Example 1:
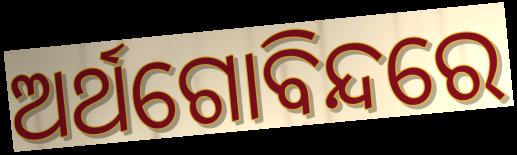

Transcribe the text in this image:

ଅର୍ଥଗୋବିନ୍ଦରେ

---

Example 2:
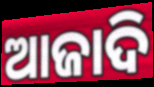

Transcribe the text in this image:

ଆଜାଦି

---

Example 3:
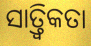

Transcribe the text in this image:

ସାତ୍ତ୍ଵିକତା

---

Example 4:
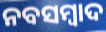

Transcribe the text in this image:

ନବସମ୍ବାଦ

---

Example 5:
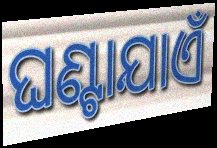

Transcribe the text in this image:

ଘଣ୍ଟାଯାଏଁ